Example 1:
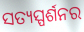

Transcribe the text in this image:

ସତ୍ୟସ୍ପର୍ଶନର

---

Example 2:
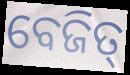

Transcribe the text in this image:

ବେଜିତ୍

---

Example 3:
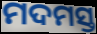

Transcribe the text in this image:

ମଦମସ୍ତ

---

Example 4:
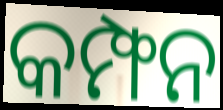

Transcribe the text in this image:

କମ୍ଫନ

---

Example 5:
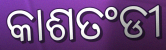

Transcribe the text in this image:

କାଶତଂଡୀ